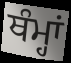
ਥੰਮ੍ਹਾਂ